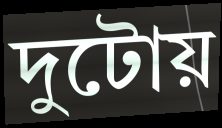
দুটোয়